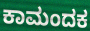
ಕಾಮಂದಕ